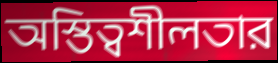
অস্তিত্বশীলতার